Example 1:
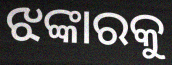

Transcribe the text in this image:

ଝଙ୍କାରକୁ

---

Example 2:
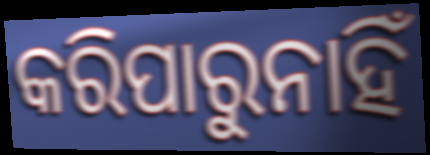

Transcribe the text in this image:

କରିପାରୁନାହିଁ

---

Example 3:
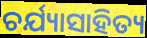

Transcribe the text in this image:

ଚର୍ଯ୍ୟାସାହିତ୍ୟ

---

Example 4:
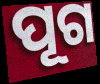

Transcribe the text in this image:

ପୂଗ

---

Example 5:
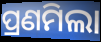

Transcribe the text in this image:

ପ୍ରଣମିଲା